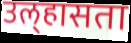
उल्हासता